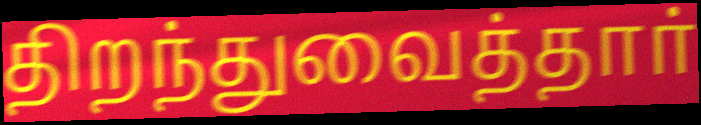
திறந்துவைத்தார்